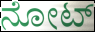
ನೋಟ್